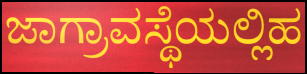
ಜಾಗ್ರಾವಸ್ಥೆಯಲ್ಲಿಹ